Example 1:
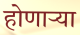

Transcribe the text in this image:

होणाऱ्या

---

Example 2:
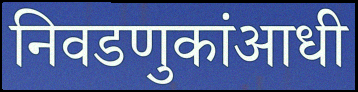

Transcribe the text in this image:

निवडणुकांआधी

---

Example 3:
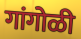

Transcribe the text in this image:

गांगोळी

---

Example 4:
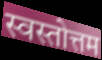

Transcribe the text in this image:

स्वस्तोत्तम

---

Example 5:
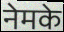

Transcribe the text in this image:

नेमके